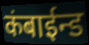
कंबाईन्ड